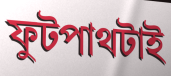
ফুটপাথটাই